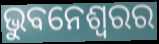
ଭୁବନେଶ୍ଵରର